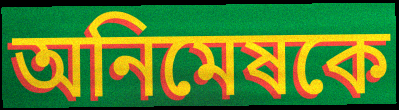
অনিমেষকে